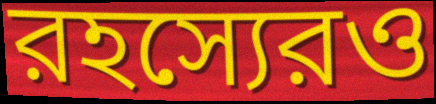
রহস্যেরও